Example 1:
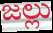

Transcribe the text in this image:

జల్లు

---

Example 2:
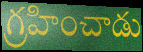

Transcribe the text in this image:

గ్రహించాడు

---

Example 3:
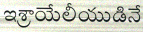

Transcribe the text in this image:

ఇశ్రాయేలీయుడినే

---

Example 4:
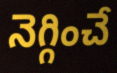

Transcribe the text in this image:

నెగ్గించే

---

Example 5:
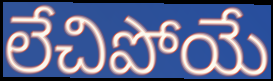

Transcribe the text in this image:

లేచిపోయే